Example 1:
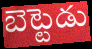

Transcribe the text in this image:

బెట్టెడు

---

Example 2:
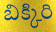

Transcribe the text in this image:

బిక్కిరి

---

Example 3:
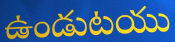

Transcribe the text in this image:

ఉండుటయు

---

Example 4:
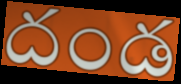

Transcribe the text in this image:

దండ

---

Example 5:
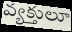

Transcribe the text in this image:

వ్యక్తులూ